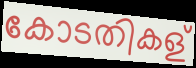
കോടതികള്